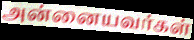
அன்னையவர்கள்